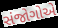
સંજોગોએ